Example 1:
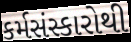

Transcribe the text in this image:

કર્મસંસ્કારોથી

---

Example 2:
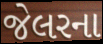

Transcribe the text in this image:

જેલરના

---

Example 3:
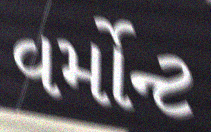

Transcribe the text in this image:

વર્મોન્ટ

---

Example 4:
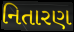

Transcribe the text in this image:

નિતારણ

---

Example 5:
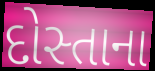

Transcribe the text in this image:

દોસ્તાના